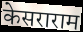
केसराराम